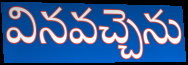
వినవచ్చెను